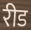
रीड